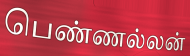
பெண்ணல்லன்